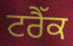
ਟਰੈੱਕ